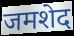
जमशेद